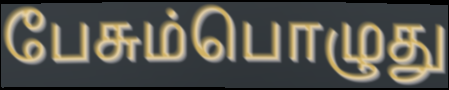
பேசும்பொழுது